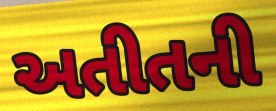
અતીતની